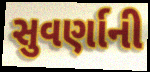
સુવર્ણાની